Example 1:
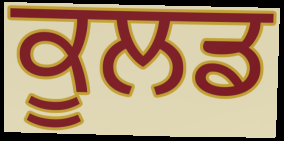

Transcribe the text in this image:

ਕੂਲਡ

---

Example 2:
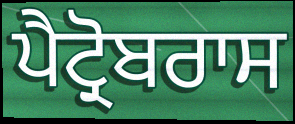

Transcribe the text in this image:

ਪੈਟ੍ਰੋਬਰਾਸ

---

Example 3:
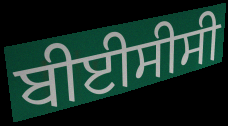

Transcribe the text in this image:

ਬੀਈਸੀਸੀ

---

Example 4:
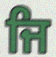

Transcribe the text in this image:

ਜਿ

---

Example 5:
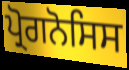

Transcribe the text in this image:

ਪ੍ਰੋਗਨੋਸਿਸ